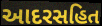
આદરસહિત